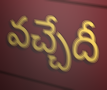
వచ్చేదీ